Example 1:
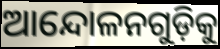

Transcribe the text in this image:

ଆନ୍ଦୋଳନଗୁଡ଼ିକୁ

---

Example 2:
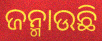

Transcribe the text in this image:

ଜନ୍ମାଉଛି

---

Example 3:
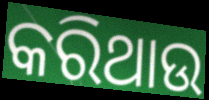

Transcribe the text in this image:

କରିଥାଉ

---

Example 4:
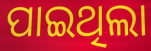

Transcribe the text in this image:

ପାଇଥିଲା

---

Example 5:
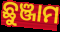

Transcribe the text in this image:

ଛୁଞ୍ଜାମ